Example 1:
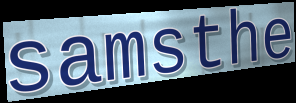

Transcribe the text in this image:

samsthe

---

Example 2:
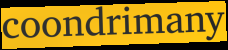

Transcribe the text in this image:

coondrimany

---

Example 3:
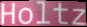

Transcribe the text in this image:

Holtz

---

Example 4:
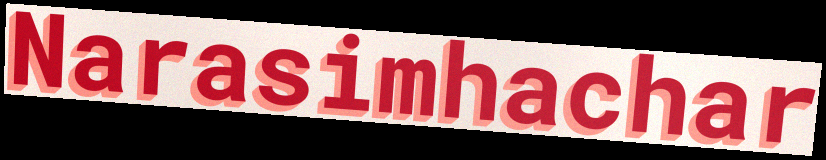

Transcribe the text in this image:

Narasimhachar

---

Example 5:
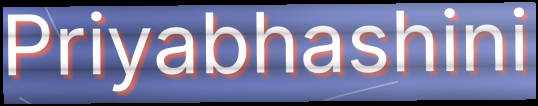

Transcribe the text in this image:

Priyabhashini